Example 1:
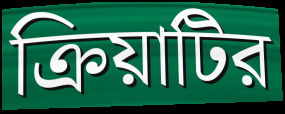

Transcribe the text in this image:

ক্রিয়াটির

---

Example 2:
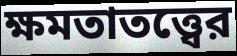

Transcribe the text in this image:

ক্ষমতাতত্ত্বের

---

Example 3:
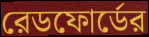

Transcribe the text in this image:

রেডফোর্ডের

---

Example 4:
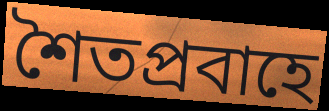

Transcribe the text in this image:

শৈতপ্রবাহে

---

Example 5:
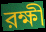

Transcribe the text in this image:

রক্ষী